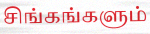
சிங்கங்களும்